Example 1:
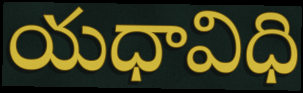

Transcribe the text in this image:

యధావిధి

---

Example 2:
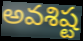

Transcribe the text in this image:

అవశిష్ట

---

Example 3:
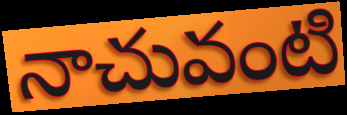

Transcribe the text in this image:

నాచువంటి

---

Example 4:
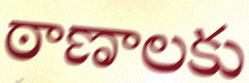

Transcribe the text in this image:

ఠాణాలకు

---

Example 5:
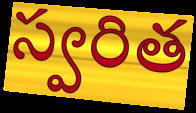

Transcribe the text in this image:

స్వరిత